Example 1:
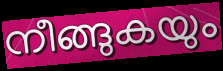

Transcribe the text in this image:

നീങ്ങുകയും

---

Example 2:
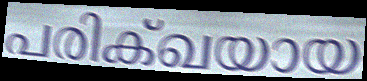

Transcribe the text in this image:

പരിക്ഖയായ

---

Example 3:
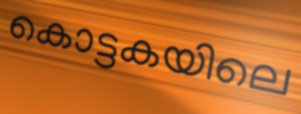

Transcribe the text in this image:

കൊട്ടകയിലെ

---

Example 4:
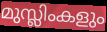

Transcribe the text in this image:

മുസ്ലിംകളും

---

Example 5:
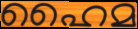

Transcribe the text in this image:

ഹൈമ